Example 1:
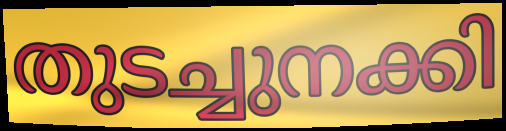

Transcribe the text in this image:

തുടച്ചുനക്കി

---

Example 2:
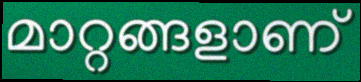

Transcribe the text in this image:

മാറ്റങ്ങളാണ്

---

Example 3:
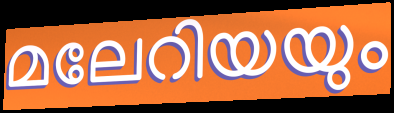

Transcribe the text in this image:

മലേറിയയും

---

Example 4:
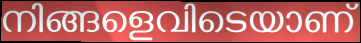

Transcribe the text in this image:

നിങ്ങളെവിടെയാണ്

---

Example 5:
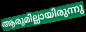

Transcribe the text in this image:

ആരുമില്ലായിരുന്നു